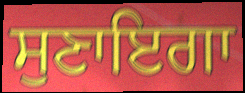
ਸੁਣਾਇਗਾ